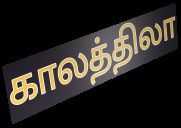
காலத்திலா